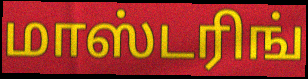
மாஸ்டரிங்